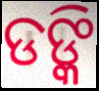
ଡଙ୍କି